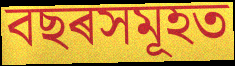
বছৰসমূহত